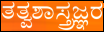
ತತ್ವಶಾಸ್ತ್ರಜ್ಞರ